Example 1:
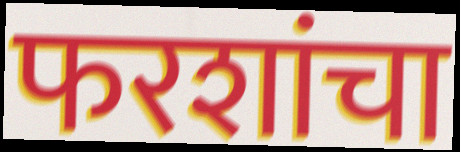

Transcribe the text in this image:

फरशांचा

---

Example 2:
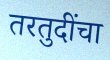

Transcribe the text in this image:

तरतुदींचा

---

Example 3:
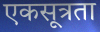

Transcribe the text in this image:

एकसूत्रता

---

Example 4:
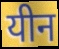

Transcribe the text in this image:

यीन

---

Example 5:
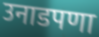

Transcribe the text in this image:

उनाडपणा